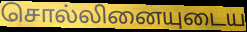
சொல்லினையுடைய